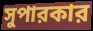
সুপারকার